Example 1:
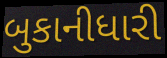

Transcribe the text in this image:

બુકાનીધારી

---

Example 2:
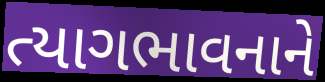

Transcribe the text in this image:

ત્યાગભાવનાને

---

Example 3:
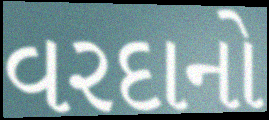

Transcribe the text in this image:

વરદાનો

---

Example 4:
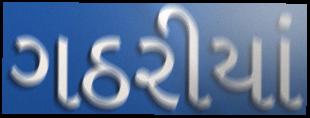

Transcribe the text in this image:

ગઠરીયાં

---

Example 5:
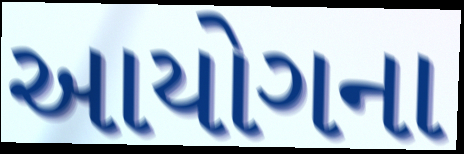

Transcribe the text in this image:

આયોગના